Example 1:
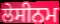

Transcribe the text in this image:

ਲੇਸੀਨਮ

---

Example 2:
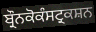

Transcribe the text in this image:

ਬ੍ਰੌਨਕੋਕੰਸਟ੍ਰਕਸ਼ਨ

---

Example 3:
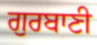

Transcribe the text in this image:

ਗੁਰਬਾਣੀ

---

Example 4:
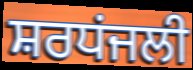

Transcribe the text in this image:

ਸ਼ਰਧਂਜਲੀ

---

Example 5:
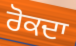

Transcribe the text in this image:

ਰੋਕਦਾ